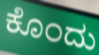
ಕೊಂದು